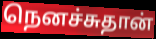
நெனச்சுதான்